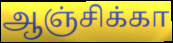
ஆஞ்சிக்கா